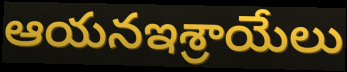
ఆయనఇశ్రాయేలు